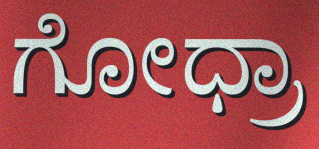
ಗೋಧ್ರಾ